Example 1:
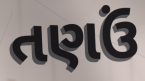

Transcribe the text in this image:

તણઉં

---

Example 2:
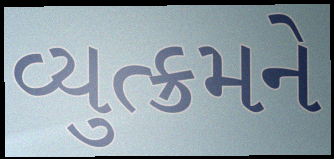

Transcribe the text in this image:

વ્યુત્ક્રમને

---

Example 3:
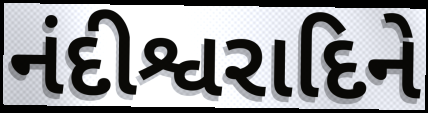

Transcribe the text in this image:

નંદીશ્વરાદિને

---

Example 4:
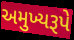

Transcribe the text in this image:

અમુખ્યરૂપે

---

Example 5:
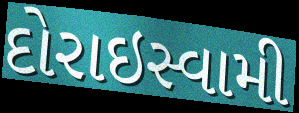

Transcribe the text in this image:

દોરાઇસ્વામી